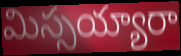
మిస్సయ్యారా